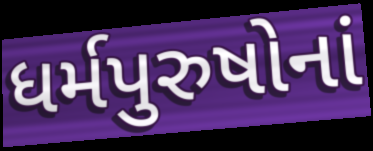
ધર્મપુરુષોનાં